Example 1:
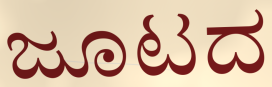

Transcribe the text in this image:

ಜೂಟದ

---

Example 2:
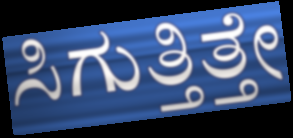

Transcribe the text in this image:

ಸಿಗುತ್ತಿತ್ತೇ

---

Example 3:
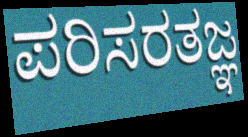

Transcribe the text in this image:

ಪರಿಸರತಜ್ಞ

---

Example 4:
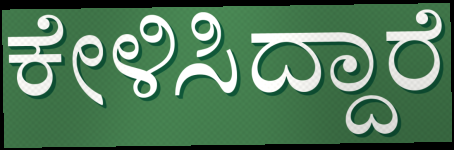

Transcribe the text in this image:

ಕೇಳಿಸಿದ್ದಾರೆ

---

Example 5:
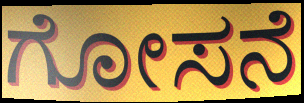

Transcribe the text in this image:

ಗೋಸನೆ